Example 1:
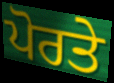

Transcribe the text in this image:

ਪੋਰਤੇ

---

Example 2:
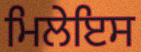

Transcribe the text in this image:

ਮਿਲੇਇਸ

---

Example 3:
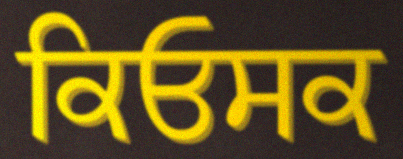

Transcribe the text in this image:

ਕਿਓਸਕ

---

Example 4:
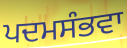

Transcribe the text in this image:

ਪਦਮਸੰਭਵਾ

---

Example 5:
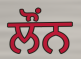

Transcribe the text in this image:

ਲੌਂਨ